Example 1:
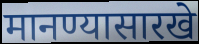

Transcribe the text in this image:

मानण्यासारखे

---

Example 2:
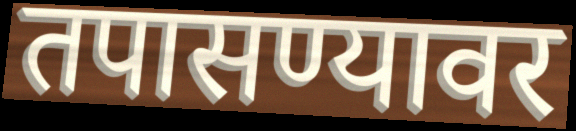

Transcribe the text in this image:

तपासण्यावर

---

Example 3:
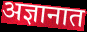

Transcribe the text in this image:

अज्ञानात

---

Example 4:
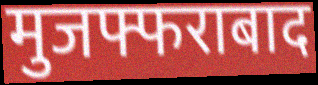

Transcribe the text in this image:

मुजफ्फराबाद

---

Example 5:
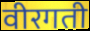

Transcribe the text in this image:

वीरगती